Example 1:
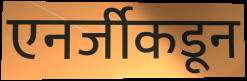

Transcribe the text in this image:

एनर्जीकडून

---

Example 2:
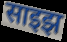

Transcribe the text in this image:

साइझ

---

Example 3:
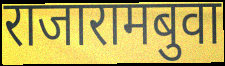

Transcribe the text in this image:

राजारामबुवा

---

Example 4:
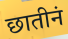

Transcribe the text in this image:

छातीनं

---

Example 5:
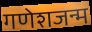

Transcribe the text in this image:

गणेशजन्म